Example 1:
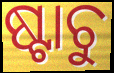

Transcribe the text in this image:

ଷ୍ଟାଚୁ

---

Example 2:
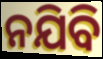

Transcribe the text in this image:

ନଯିବି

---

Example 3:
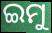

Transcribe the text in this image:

ଇମୁ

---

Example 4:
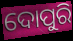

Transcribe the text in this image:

ଦୋପୁରି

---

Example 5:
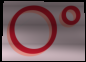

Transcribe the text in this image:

ଠଂ